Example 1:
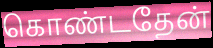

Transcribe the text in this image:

கொண்டதேன்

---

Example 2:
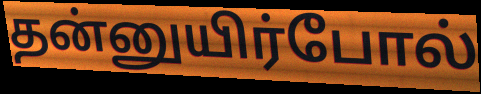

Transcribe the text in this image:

தன்னுயிர்போல்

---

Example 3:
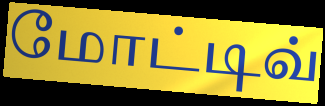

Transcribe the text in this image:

மோட்டிவ்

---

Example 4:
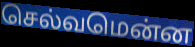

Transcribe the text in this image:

செல்வமென்ன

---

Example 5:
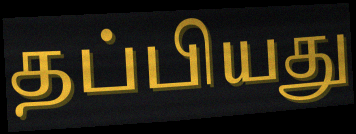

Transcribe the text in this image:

தப்பியது